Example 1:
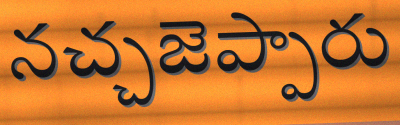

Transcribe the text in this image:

నచ్చజెప్పారు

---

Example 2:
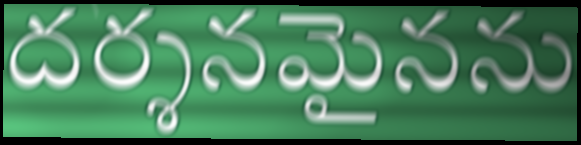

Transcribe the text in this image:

దర్శనమైనను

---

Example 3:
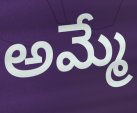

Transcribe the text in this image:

అమ్మే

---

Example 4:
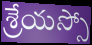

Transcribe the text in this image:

శ్రేయస్సో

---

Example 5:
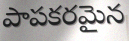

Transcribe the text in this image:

పాపకరమైన